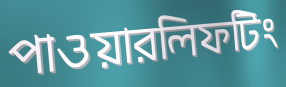
পাওয়ারলিফটিং